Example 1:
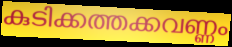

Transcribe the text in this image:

കുടിക്കത്തക്കവണ്ണം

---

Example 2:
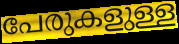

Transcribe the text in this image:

പേരുകളുള്ള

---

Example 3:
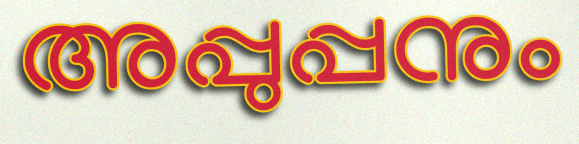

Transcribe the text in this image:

അപ്പുപ്പനും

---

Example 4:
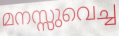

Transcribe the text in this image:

മനസ്സുവെച്ച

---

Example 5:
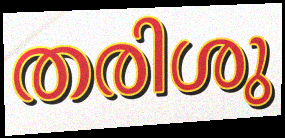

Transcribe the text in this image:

തരിശു